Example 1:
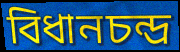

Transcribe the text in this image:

বিধানচন্দ্র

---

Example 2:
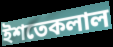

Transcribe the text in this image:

ইশতেকলাল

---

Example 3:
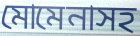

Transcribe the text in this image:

মোমেনাসহ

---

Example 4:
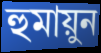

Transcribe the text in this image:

হুমায়ুন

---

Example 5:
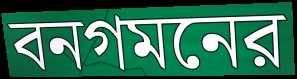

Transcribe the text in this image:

বনগমনের